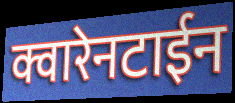
क्वारेनटाईन